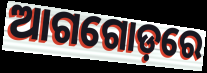
ଆଗଗୋଡ଼ରେ